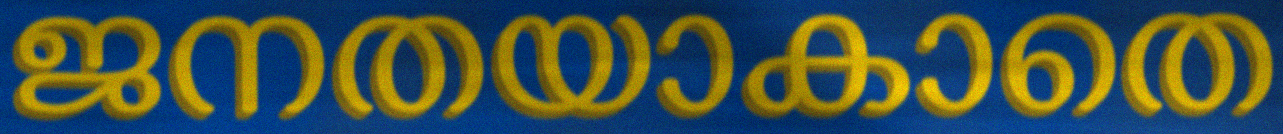
ജനതയാകാതെ